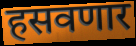
हसवणार